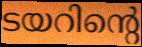
ടയറിന്റെ